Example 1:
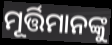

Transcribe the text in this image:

ମୂର୍ତ୍ତିମାନଙ୍କୁ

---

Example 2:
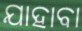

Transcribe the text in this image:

ଯାହାବା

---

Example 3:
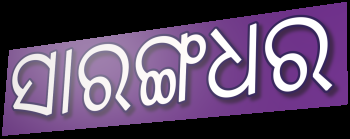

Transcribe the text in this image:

ସାରଙ୍ଗଧର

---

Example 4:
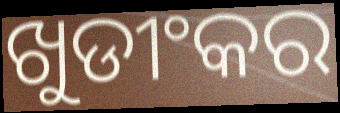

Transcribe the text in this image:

ଖୁଡୀଂକର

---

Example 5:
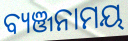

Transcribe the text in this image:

ବ୍ୟଞ୍ଜନାମୟ